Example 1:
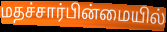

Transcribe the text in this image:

மதச்சார்பின்மையில்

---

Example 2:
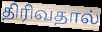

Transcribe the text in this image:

திரிவதால்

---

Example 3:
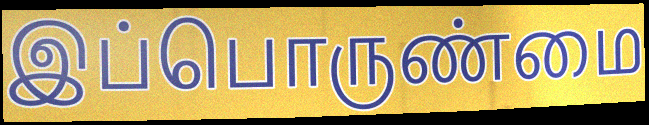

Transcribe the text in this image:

இப்பொருண்மை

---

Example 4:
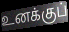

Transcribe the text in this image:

உனக்குப்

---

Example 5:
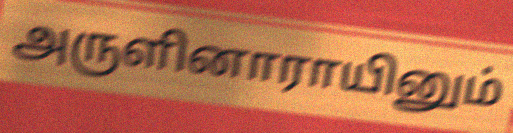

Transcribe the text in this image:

அருளினாராயினும்